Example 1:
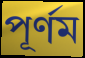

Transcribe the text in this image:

পূর্ণম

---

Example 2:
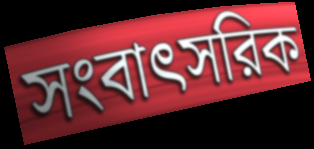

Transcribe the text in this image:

সংবাৎসরিক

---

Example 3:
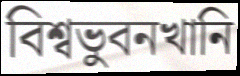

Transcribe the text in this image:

বিশ্বভুবনখানি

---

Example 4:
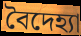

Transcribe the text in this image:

বৈদেহ্যা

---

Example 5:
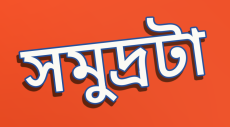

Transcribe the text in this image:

সমুদ্রটা